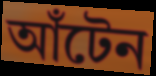
আঁটেন